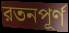
রতনপূর্ণ